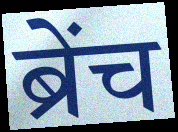
ब्रेंच